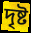
দৃষ্ট